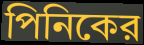
পিনিকের